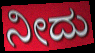
ನೀದು